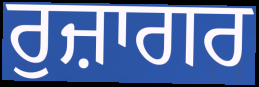
ਰੁਜ਼ਾਗਰ